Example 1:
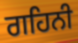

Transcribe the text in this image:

ਗਹਿਨੀ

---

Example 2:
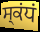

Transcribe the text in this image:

ਸ੍ਕਂਧਂ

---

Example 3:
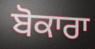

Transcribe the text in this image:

ਬੋਕਾਰਾ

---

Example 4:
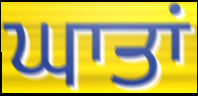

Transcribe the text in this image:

ਘਾਤਾਂ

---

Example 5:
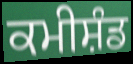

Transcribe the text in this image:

ਕਮੀਸ਼ੰਡ